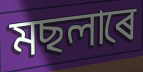
মছলাৰে